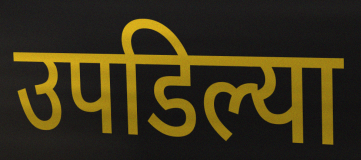
उपडिल्या